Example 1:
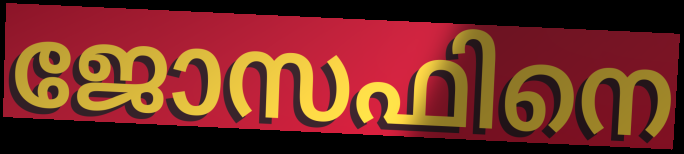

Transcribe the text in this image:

ജോസഫിനെ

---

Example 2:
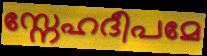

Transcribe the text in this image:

സ്നേഹദീപമേ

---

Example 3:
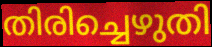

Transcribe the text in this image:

തിരിച്ചെഴുതി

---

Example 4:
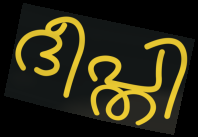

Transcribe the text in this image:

ദീപ്തി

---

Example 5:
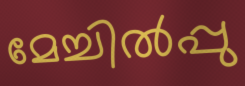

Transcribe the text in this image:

മേച്ചിൽപ്പു